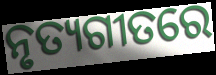
ନୃତ୍ୟଗୀତରେ